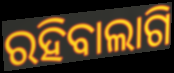
ରହିବାଲାଗି